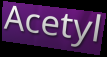
Acetyl